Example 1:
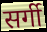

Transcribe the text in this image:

सर्गी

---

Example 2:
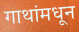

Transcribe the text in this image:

गाथांमधून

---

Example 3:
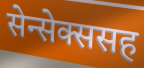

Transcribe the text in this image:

सेन्सेक्ससह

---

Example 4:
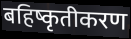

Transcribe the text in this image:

बहिष्कृतीकरण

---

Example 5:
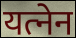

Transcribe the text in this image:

यत्‍नेन